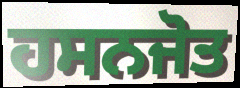
ਹਸਨਜੋਤ